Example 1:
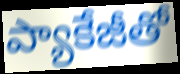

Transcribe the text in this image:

ప్యాకేజీతో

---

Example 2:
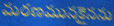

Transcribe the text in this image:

మరణమునకైనను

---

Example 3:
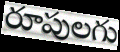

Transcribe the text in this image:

రూపులగు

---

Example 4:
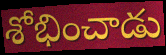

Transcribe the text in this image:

శోభించాడు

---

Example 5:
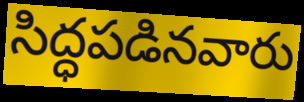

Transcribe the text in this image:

సిద్ధపడినవారు